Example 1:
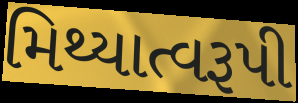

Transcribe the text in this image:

મિથ્યાત્વરૂપી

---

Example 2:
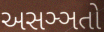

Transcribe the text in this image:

અસઞ્ઞતો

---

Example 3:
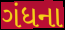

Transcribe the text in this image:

ગંધના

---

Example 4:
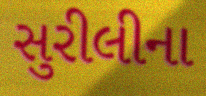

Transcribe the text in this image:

સુરીલીના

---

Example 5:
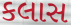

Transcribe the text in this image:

કલાસ